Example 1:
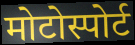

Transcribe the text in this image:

मोटोस्पोर्ट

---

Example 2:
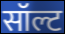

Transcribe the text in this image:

सॉल्ट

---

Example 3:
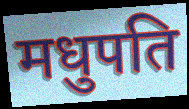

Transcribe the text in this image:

मधुपति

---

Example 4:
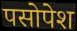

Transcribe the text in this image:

पसोपेश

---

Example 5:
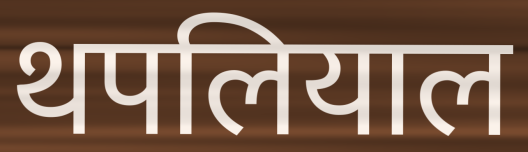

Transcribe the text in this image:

थपलियाल